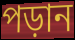
পড়ান